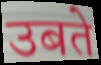
उबते